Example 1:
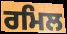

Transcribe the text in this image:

ਰਮਿਲ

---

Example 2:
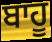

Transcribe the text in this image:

ਬਾਹੂ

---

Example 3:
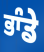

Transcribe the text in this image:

ਭਾੰਡੇ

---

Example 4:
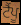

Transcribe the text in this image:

ਟੈਂਪੂ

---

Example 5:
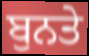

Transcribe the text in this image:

ਬੁਨਤੇ